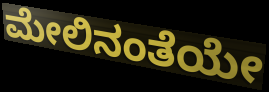
ಮೇಲಿನಂತೆಯೇ